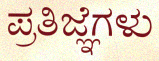
ಪ್ರತಿಜ್ಞೆಗಳು